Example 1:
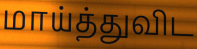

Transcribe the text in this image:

மாய்த்துவிட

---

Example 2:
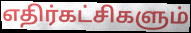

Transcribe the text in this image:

எதிர்கட்சிகளும்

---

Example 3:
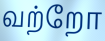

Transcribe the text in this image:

வற்றோ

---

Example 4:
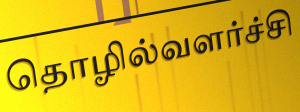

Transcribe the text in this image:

தொழில்வளர்ச்சி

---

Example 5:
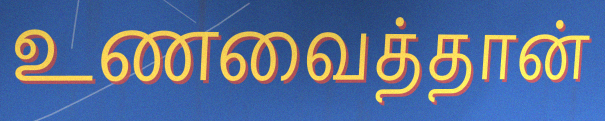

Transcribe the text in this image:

உணவைத்தான்